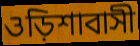
ওড়িশাবাসী